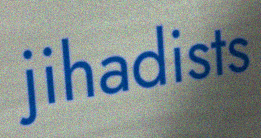
jihadists